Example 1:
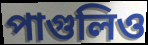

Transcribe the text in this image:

পাগুলিও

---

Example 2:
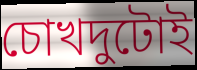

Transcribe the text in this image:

চোখদুটোই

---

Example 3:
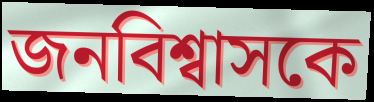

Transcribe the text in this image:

জনবিশ্বাসকে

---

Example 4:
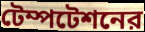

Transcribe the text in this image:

টেম্পটেশনের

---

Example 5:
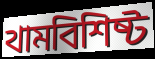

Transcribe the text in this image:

থামবিশিষ্ট